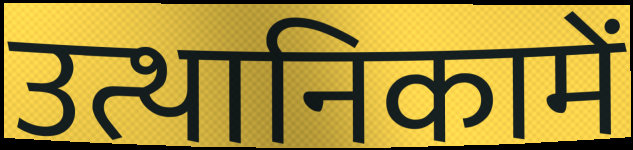
उत्थानिकामें